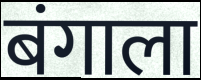
बंगाला